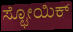
ಸ್ಟೋಯಿಕ್